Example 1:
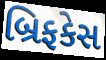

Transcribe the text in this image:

બ્રિફકેસ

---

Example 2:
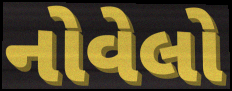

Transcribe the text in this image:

નોવેલો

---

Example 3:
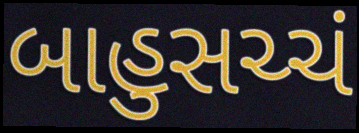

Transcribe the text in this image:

બાહુસચ્ચં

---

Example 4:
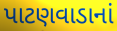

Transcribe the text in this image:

પાટણવાડાનાં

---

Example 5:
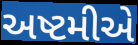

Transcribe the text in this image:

અષ્ટમીએ